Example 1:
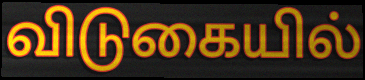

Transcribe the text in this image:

விடுகையில்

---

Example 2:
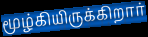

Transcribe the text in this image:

மூழ்கியிருக்கிறார்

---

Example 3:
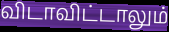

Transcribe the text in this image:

விடாவிட்டாலும்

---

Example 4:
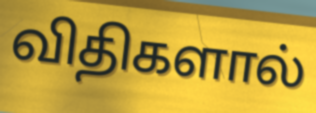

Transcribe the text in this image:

விதிகளால்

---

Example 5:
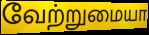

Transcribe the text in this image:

வேற்றுமையா